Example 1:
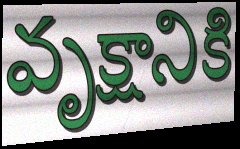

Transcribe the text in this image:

వృక్షానికి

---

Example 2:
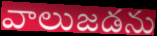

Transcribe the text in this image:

వాలుజడను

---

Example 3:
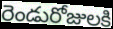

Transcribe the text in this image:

రెండురోజులకి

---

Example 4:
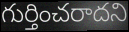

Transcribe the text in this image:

గుర్తించరాదని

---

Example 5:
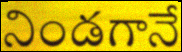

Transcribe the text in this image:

నిండగానే